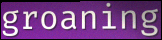
groaning